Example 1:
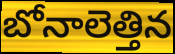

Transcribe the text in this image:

బోనాలెత్తిన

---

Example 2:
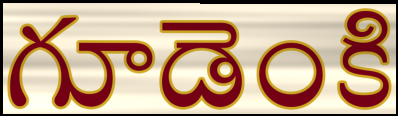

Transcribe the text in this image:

గూడెంకి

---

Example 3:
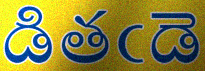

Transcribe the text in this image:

డితఁడె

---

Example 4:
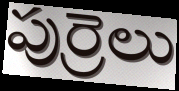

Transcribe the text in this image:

పుర్రెలు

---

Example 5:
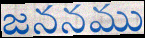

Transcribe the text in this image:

జననము